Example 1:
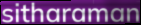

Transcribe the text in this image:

sitharaman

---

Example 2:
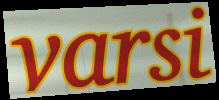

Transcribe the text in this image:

varsi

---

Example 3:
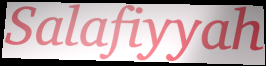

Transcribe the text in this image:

Salafiyyah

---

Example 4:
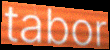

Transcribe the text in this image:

tabor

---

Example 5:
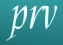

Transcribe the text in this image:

prv